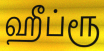
ஹீப்ரூ